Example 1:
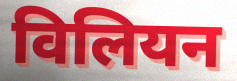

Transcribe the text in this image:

विलियन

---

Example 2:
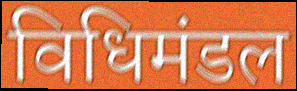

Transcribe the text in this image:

विधिमंडल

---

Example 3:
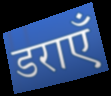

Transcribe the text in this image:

डराएँ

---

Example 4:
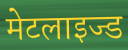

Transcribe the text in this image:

मेटलाइज्ड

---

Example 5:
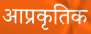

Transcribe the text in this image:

आप्रकृतिक